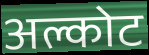
अल्कोट